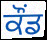
ਕੌਂਡ